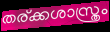
തര്ക്കശാസ്ത്രം